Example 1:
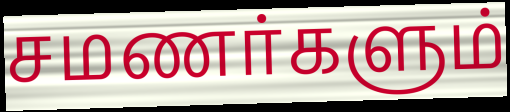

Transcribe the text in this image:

சமணர்களும்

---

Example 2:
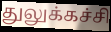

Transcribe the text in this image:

துலுக்கச்சி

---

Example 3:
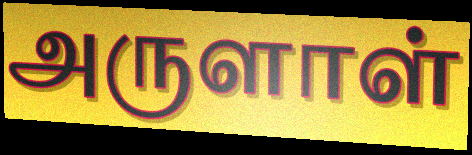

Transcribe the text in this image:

அருளாள்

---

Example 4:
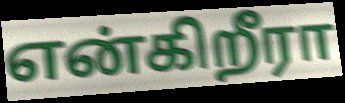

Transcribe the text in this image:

என்கிறீரா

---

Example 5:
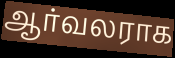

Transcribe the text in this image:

ஆர்வலராக